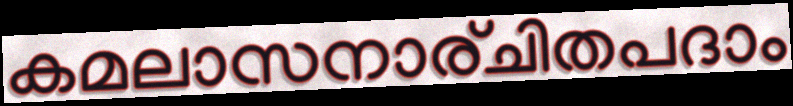
കമലാസനാര്ചിതപദാം